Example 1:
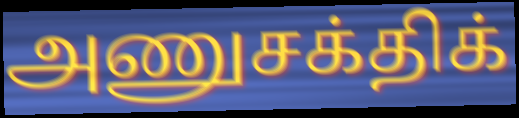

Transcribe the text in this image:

அணுசக்திக்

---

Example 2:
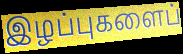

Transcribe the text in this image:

இழப்புகளைப்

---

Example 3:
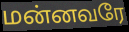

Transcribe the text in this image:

மன்னவரே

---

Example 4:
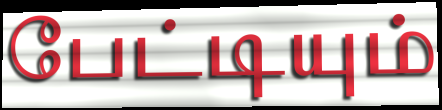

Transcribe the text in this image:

பேட்டியும்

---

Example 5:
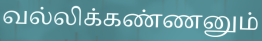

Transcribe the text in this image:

வல்லிக்கண்ணனும்